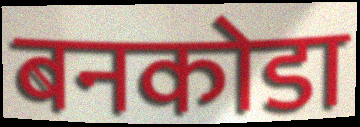
बनकोडा